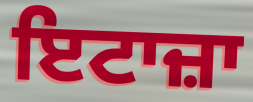
ਇਟਾਜ਼ਾ